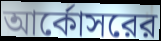
আর্কোসরের